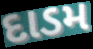
દાડમ